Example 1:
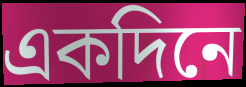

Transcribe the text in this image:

একদিনে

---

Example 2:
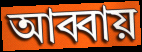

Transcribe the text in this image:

আব্বায়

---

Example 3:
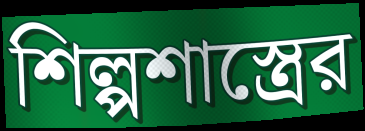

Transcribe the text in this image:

শিল্পশাস্ত্রের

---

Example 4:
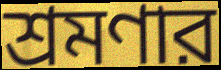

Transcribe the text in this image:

শ্রমণার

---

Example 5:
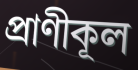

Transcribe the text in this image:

প্রাণীকূল